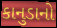
કાનુડાનો